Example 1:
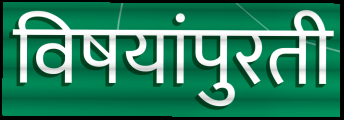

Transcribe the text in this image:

विषयांपुरती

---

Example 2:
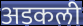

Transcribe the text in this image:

अडकली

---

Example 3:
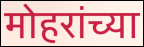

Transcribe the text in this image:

मोहरांच्या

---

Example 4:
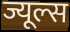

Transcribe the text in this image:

ज्यूल्स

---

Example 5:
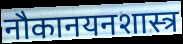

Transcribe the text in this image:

नौकानयनशास्त्र